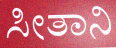
ಸೀತಾನಿ